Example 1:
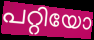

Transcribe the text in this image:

പറ്റിയോ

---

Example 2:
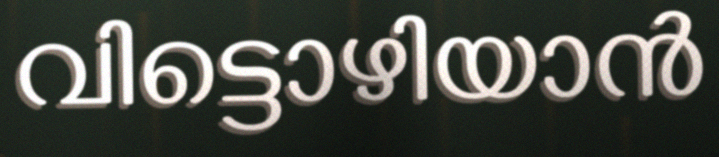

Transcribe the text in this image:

വിട്ടൊഴിയാൻ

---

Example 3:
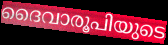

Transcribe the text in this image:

ദൈവാരൂപിയുടെ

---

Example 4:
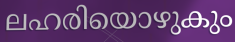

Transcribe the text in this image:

ലഹരിയൊഴുകും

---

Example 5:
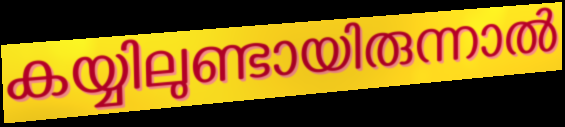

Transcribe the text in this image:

കയ്യിലുണ്ടായിരുന്നാൽ